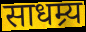
साधम्र्य